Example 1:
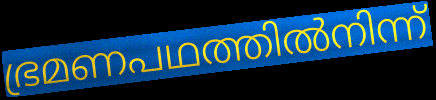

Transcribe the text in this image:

ഭ്രമണപഥത്തിൽനിന്ന്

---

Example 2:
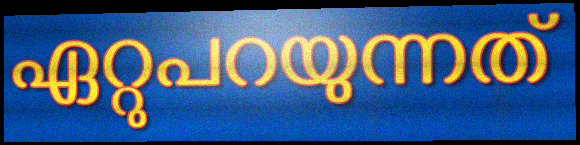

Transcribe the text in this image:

ഏറ്റുപറയുന്നത്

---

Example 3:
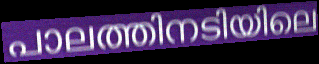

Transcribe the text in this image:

പാലത്തിനടിയിലെ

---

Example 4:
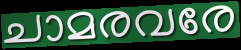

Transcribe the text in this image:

ചാമരവരേ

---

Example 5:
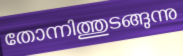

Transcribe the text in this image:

തോന്നിത്തുടങ്ങുന്നു